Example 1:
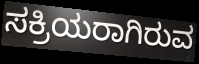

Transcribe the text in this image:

ಸಕ್ರಿಯರಾಗಿರುವ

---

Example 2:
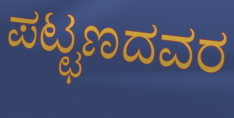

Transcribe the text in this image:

ಪಟ್ಟಣದವರ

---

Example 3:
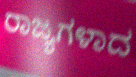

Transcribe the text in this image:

ರಾಜ್ಯಗಳಾದ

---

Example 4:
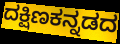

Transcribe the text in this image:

ದಕ್ಷಿಣಕನ್ನಡದ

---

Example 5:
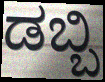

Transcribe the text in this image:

ಡಬ್ಬಿ